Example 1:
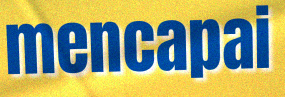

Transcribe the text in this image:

mencapai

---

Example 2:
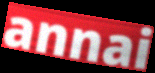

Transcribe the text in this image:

annai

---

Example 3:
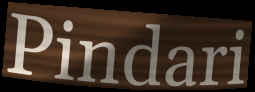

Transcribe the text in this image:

Pindari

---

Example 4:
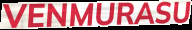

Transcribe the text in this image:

VENMURASU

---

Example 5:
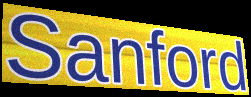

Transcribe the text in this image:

Sanford